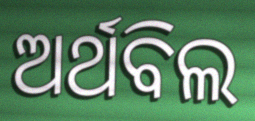
ଅର୍ଥବିଲ